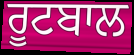
ਰੂਟਬਾਲ